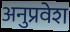
अनुप्रवेश